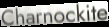
Charnockite